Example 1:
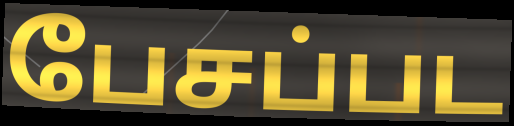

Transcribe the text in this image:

பேசப்பட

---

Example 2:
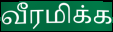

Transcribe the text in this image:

வீரமிக்க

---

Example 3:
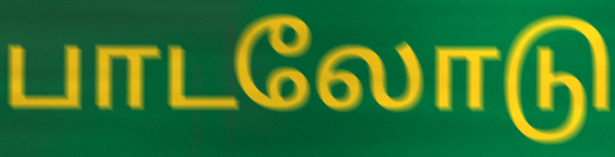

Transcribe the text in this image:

பாடலோடு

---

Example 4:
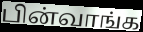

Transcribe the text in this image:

பின்வாங்க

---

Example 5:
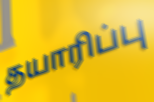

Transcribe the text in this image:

தயாரிப்பு